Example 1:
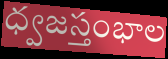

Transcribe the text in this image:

ధ్వజస్తంభాల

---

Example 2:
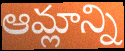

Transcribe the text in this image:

ఆమ్లాన్ని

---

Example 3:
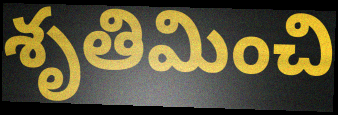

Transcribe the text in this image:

శృతిమించి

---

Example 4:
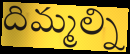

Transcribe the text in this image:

దిమ్మల్ని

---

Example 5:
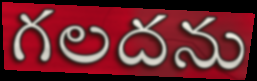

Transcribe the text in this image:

గలదను